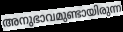
അനുഭാവമുണ്ടായിരുന്ന